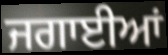
ਜਗਾਈਆਂ